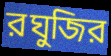
রঘুজির